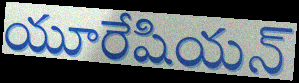
యూరేషియన్